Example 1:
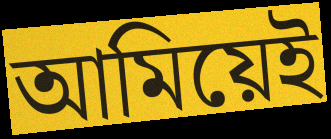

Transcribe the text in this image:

আমিয়েই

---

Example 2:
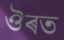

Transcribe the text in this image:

ঔৰত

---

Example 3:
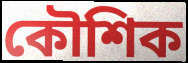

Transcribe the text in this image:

কৌশিক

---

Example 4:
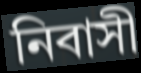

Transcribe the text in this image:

নিবাসী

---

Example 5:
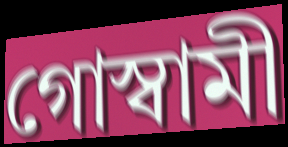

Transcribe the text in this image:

গোস্বামী